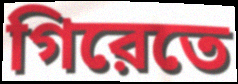
গিরেতে